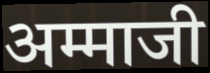
अम्माजी